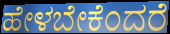
ಹೇಳಬೇಕೆಂದರೆ